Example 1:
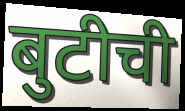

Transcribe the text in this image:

बुटीची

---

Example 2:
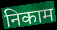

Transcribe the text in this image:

निकाम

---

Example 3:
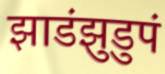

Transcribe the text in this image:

झाडंझुडुपं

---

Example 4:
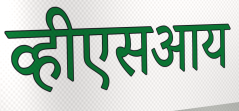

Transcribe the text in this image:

व्हीएसआय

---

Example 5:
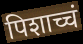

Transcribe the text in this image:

पिशाच्चं